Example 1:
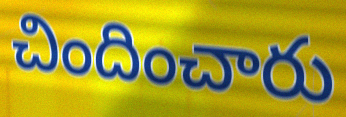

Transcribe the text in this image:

చిందించారు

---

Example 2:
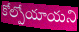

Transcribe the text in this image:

కోల్పోయాయని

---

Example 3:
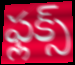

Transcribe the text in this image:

ఫ్లక్స్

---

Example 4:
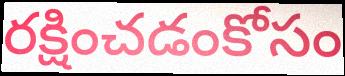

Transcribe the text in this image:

రక్షించడంకోసం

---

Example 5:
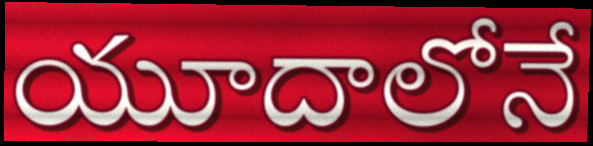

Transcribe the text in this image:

యూదాలోనే